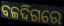
ବଳଦିଗରେ